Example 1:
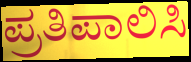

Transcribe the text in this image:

ಪ್ರತಿಪಾಲಿಸಿ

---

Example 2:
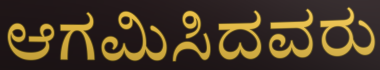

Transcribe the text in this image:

ಆಗಮಿಸಿದವರು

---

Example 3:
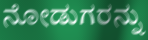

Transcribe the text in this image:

ನೋಡುಗರನ್ನು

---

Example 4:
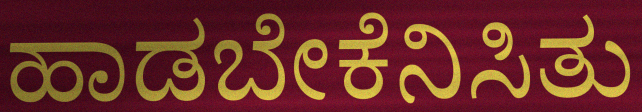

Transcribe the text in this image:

ಹಾಡಬೇಕೆನಿಸಿತು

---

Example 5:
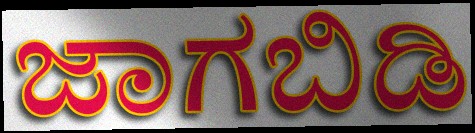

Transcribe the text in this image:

ಜಾಗಬಿಡಿ